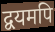
द्वयमपि